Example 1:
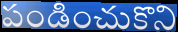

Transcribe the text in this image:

పండించుకొని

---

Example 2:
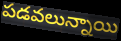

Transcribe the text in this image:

పడవలున్నాయి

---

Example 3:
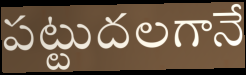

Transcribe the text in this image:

పట్టుదలగానే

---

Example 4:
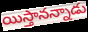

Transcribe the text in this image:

యిస్తానన్నాడు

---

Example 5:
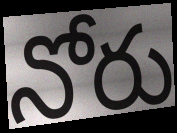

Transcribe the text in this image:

నోరు